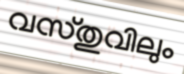
വസ്തുവിലും